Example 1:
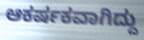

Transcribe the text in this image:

ಆಕರ್ಷಕವಾಗಿದ್ದು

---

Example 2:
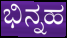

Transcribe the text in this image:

ಭಿನ್ನಹ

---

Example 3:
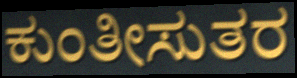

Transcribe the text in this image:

ಕುಂತೀಸುತರ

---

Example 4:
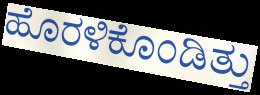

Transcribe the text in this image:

ಹೊರಳಿಕೊಂಡಿತ್ತು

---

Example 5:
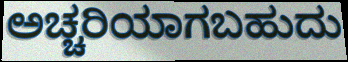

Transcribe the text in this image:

ಅಚ್ಚರಿಯಾಗಬಹುದು